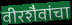
वीरशैवांचा